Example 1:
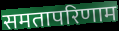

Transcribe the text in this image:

समतापरिणाम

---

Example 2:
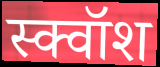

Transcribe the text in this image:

स्क्वॉश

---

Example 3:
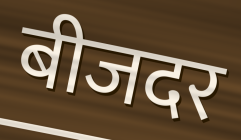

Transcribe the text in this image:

बीजदर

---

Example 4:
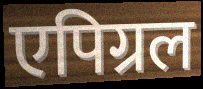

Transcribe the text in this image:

एपिग्रल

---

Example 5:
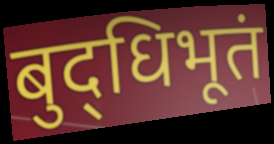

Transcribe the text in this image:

बुद्धिभूतं